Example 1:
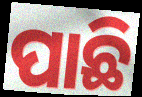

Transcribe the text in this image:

ପାଛି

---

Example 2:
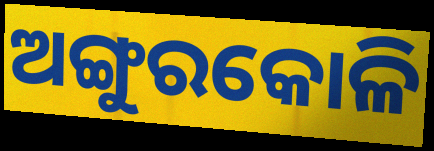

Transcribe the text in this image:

ଅଙ୍ଗୁରକୋଳି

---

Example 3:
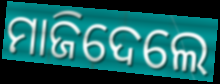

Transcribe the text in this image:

ମାଜିଦେଲେ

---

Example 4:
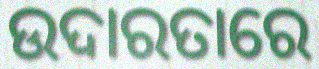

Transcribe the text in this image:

ଉଦାରତାରେ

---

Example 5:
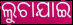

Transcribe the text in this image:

ଲୁଚାଯାଇ